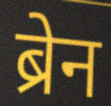
ब्रेन